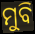
ମୁବି